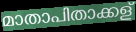
മാതാപിതാക്കള്